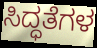
ಸಿದ್ಧತೆಗಳ